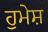
ਹੁਮੇਸ਼